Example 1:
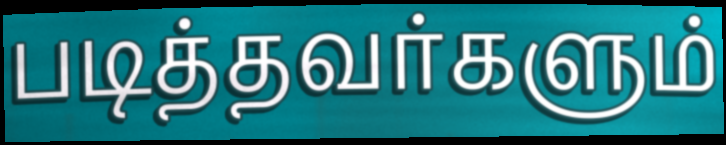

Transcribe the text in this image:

படித்தவர்களும்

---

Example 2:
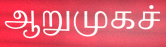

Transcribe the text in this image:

ஆறுமுகச்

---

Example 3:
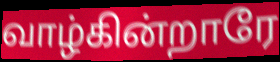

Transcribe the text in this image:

வாழ்கின்றாரே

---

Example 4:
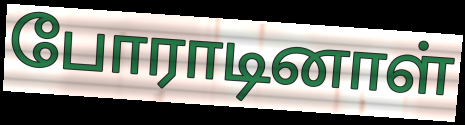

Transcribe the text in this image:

போராடினாள்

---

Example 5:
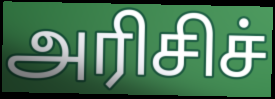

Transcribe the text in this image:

அரிசிச்